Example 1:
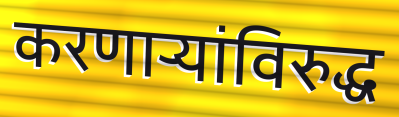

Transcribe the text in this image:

करणाऱ्यांविरुद्ध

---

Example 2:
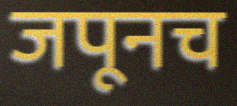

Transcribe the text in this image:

जपूनच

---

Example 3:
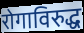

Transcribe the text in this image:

रोगाविरुद्ध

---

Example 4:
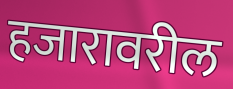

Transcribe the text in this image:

हजारावरील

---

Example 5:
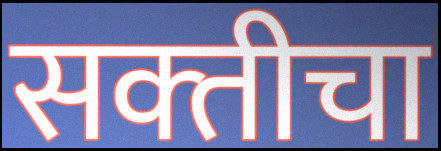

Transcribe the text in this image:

सक्‍तीचा